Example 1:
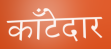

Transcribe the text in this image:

काँटेदार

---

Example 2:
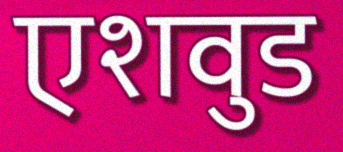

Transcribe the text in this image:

एशवुड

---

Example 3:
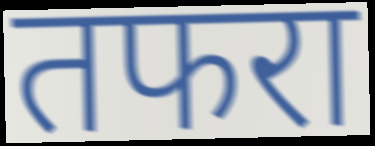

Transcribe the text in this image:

तफरा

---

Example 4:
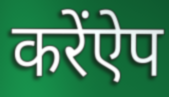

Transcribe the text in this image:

करेंऐप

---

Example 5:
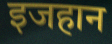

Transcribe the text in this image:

इजहान